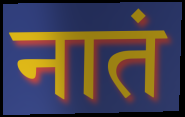
नातं